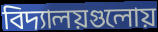
বিদ্যালয়গুলোয়